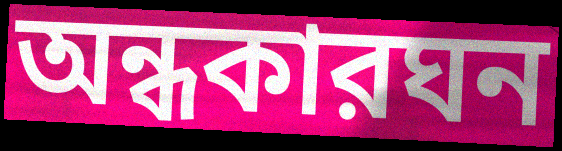
অন্ধকারঘন